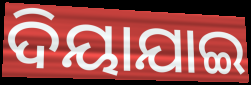
ଦିୟାଯାଇ